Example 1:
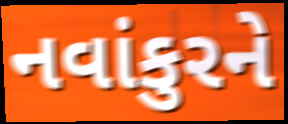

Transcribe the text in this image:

નવાંકુરને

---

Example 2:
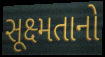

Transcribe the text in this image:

સૂક્ષ્મતાનો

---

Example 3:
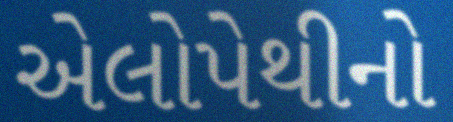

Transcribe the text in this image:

એલોપેથીનો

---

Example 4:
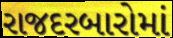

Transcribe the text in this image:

રાજદરબારોમાં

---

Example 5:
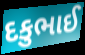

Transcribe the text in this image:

દકુભાઈ